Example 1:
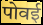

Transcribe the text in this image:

पोवई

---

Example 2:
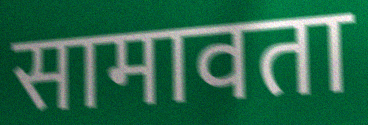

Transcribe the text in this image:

सामावता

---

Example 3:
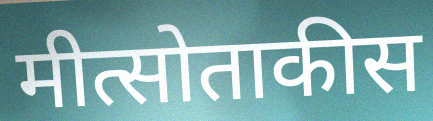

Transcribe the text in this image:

मीत्सोताकीस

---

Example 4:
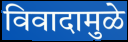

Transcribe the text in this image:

विवादामुळे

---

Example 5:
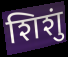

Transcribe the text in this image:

शिशुं